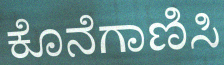
ಕೊನೆಗಾಣಿಸಿ